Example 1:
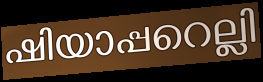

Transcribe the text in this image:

ഷിയാപ്പറെല്ലി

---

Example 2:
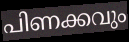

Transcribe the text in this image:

പിണക്കവും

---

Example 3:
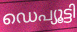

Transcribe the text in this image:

ഡെപ്യൂട്ടി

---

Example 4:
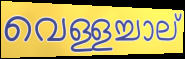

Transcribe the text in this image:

വെള്ളച്ചാല്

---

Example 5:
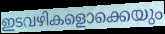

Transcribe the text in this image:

ഇടവഴികളൊക്കെയും